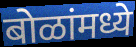
बोळांमध्ये